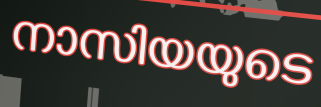
നാസിയയുടെ